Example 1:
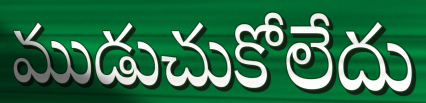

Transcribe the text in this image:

ముడుచుకోలేదు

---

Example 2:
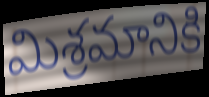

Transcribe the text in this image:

మిశ్రమానికి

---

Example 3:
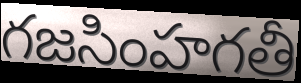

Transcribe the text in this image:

గజసింహగతీ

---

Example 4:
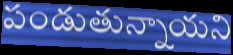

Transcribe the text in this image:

పండుతున్నాయని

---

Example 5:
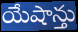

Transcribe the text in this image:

యేషాన్తు